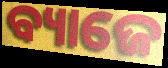
ବ୍ୟାଜେ